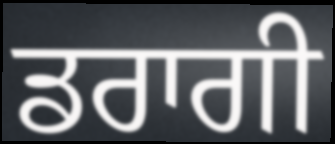
ਡਰਾਗੀ